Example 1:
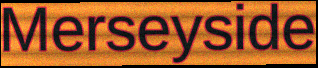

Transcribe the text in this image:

Merseyside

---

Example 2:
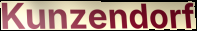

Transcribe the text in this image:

Kunzendorf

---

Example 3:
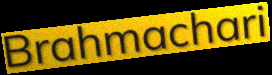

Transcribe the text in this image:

Brahmachari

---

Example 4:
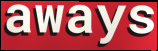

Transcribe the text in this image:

aways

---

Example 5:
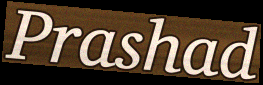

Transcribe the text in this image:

Prashad